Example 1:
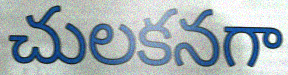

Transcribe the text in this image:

చులకనగా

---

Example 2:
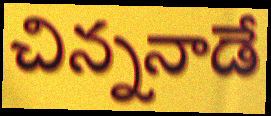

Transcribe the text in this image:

చిన్ననాడే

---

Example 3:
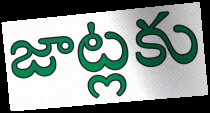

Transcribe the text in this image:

జాట్లకు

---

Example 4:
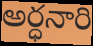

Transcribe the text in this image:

అర్ధనారి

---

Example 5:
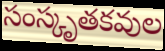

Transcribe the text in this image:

సంస్కృతకవుల